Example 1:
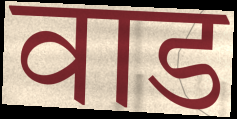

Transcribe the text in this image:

वाड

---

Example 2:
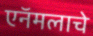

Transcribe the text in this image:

एनॅमलाचे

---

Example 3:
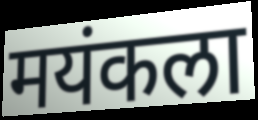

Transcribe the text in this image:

मयंकला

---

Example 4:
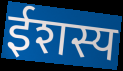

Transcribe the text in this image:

ईशस्य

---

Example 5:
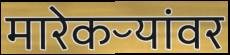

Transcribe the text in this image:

मारेकऱ्यांवर